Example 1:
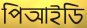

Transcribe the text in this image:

পিআইডি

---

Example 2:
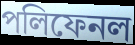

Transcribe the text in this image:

পলিফেনল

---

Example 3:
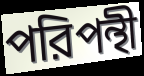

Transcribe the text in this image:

পরিপন্থী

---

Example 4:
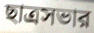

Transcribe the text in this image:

ছাত্রসভার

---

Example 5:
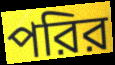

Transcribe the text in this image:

পরির